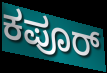
ಕಪೂರ್